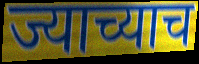
ज्याच्याच